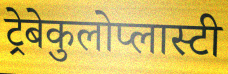
ट्रेबेकुलोप्लास्टी